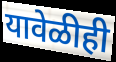
यावेळीही